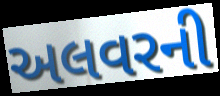
અલવરની